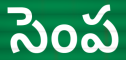
సెంప